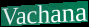
Vachana